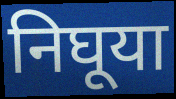
निघूया